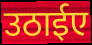
उठाईए